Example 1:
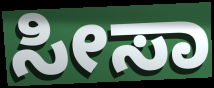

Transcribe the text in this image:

ಸೀಸಾ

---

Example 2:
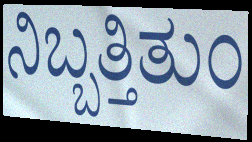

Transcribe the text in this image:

ನಿಬ್ಬತ್ತಿತುಂ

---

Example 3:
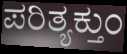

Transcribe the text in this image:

ಪರಿತ್ಯಕ್ತುಂ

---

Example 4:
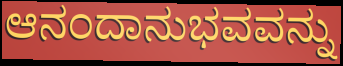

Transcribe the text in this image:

ಆನಂದಾನುಭವವನ್ನು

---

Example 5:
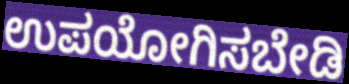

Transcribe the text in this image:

ಉಪಯೋಗಿಸಬೇಡಿ